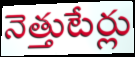
నెత్తుటేర్లు